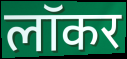
लॉकर